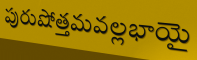
పురుషోత్తమవల్లభాయై